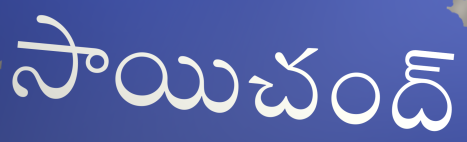
సాయిచంద్